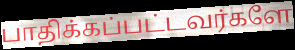
பாதிக்கப்பட்டவர்களே